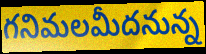
గనిమలమీదనున్న